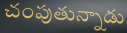
చంపుతున్నాడు